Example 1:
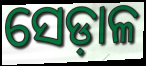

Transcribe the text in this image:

ସେଡ଼ାଳ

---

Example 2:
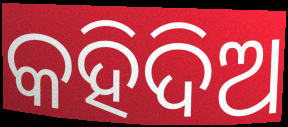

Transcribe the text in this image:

କହିଦିଅ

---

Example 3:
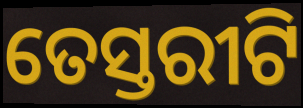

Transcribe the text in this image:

ତେସ୍ତରୀଟି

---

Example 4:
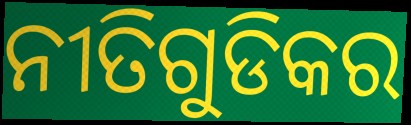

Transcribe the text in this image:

ନୀତିଗୁଡିକର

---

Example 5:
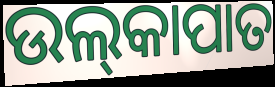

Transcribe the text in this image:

ଉଲ୍‍କାପାତ